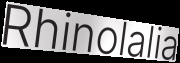
Rhinolalia